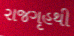
રાજગૃહથી